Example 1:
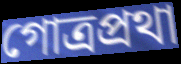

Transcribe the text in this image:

গোত্রপ্রথা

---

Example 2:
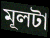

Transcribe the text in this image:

মূলটা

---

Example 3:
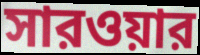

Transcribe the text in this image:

সারওয়ার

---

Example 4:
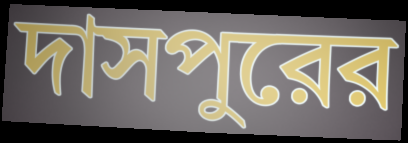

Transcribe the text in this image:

দাসপুরের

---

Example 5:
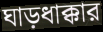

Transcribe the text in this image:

ঘাড়ধাক্কার